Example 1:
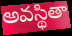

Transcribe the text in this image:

అవస్థితా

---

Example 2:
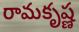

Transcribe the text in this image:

రామకృష్ణ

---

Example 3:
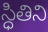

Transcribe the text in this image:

స్ధితిని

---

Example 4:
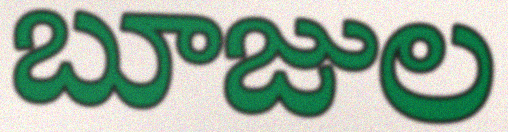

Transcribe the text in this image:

బూజుల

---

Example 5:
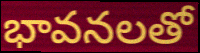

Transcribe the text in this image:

భావనలతో